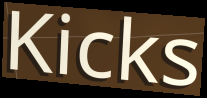
Kicks